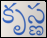
కృస్ణ